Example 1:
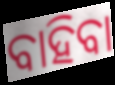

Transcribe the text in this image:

ବାହିବା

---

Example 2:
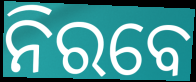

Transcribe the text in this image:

ନିରବେ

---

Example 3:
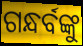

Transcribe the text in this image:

ଗନ୍ଧର୍ବଙ୍କୁ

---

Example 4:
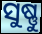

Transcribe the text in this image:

ସୁଷ୍ଣୁ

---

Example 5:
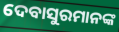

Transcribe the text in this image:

ଦେବାସୁରମାନଙ୍କ